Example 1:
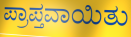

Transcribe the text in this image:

ಪ್ರಾಪ್ತವಾಯಿತು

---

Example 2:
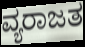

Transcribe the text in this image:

ವ್ಯರಾಜತ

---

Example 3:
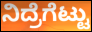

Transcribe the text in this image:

ನಿದ್ರೆಗೆಟ್ಟು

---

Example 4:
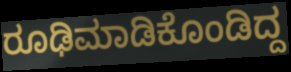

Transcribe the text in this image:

ರೂಢಿಮಾಡಿಕೊಂಡಿದ್ದ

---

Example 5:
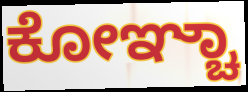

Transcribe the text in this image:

ಕೋಞ್ಚಾ